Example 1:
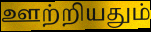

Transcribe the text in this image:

ஊற்றியதும்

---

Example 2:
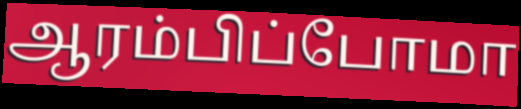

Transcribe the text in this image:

ஆரம்பிப்போமா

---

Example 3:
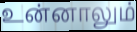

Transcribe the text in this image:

உன்னாலும்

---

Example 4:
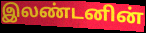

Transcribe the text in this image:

இலண்டனின்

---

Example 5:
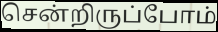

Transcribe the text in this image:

சென்றிருப்போம்